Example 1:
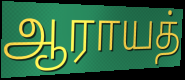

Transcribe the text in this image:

ஆராயத்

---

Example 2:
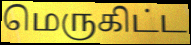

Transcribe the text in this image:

மெருகிட்ட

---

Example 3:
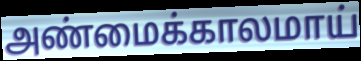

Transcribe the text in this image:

அண்மைக்காலமாய்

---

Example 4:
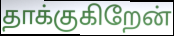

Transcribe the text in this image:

தாக்குகிறேன்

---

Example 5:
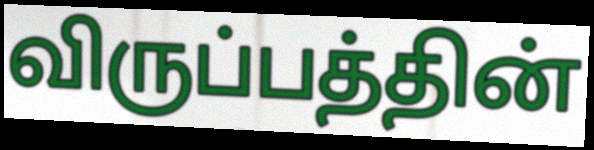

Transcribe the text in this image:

விருப்பத்தின்